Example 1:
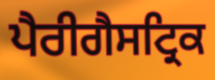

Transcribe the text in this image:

ਪੈਰੀਗੈਸਟ੍ਰਿਕ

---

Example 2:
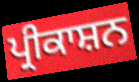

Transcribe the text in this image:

ਪ੍ਰੀਕਾਸ਼ਨ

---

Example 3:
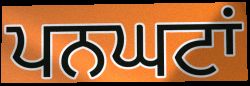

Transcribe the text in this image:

ਪਨਘਟਾਂ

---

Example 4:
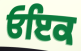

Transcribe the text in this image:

ਓਇਕ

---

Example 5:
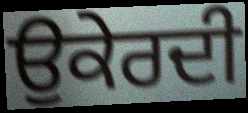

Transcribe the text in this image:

ਉਕੇਰਦੀ